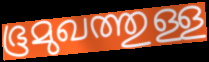
ഭൂമുഖത്തുള്ള